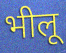
भीलू